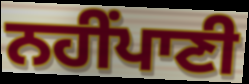
ਨਹੀਂਪਾਣੀ